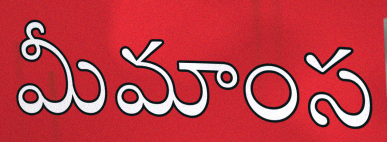
మీమాంస